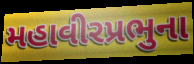
મહાવીરપ્રભુના